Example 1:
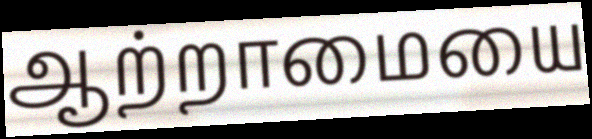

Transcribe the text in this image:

ஆற்றாமையை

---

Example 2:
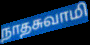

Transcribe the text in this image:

நாதசுவாமி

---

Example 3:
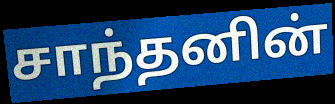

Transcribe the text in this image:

சாந்தனின்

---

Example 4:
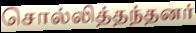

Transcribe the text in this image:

சொல்லித்தந்தனர்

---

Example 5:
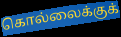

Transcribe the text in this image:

கொல்லைக்குக்